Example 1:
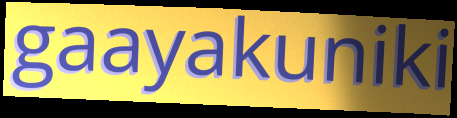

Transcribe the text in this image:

gaayakuniki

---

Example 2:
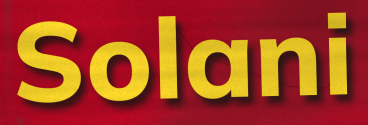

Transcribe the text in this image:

Solani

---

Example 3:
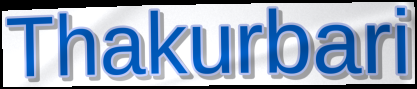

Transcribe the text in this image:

Thakurbari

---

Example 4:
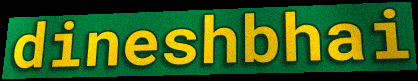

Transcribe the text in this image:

dineshbhai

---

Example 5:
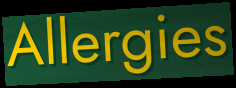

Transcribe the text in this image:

Allergies